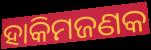
ହାକିମଜଣକ